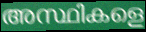
അസ്ഥികളെ